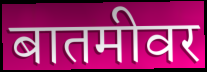
बातमीवर